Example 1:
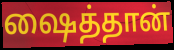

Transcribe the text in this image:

ஷைத்தான்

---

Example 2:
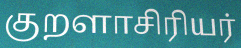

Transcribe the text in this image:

குறளாசிரியர்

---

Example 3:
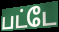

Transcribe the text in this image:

பட்டே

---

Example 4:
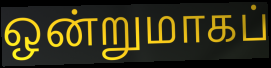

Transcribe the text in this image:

ஒன்றுமாகப்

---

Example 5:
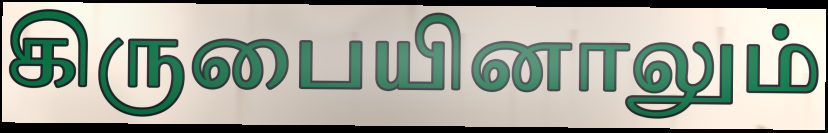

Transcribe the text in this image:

கிருபையினாலும்